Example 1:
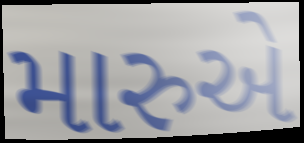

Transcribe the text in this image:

મારુએ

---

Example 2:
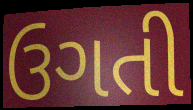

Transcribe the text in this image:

ઉગતી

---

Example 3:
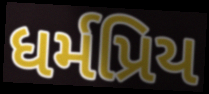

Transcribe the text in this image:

ધર્મપ્રિય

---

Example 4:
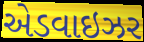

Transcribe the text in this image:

એડવાઇઝર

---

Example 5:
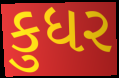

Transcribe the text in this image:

કુધર